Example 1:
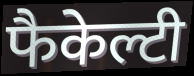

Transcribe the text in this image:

फैकेल्टी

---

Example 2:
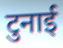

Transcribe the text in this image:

टुनाई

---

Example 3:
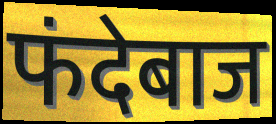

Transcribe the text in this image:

फंदेबाज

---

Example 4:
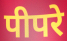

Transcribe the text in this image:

पीपरे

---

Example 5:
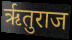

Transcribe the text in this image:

ऋृतुराज